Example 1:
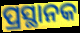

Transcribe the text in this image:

ପ୍ରସ୍ଥାନକ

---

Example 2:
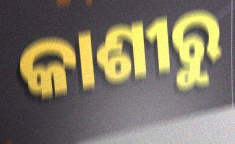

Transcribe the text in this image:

କାଶୀରୁ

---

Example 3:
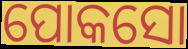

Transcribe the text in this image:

ପୋକସୋ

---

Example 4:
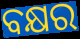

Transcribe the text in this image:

ବକ୍ଷର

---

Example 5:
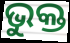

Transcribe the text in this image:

ଭୁକ୍ତ